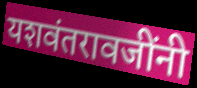
यशवंतरावजींनी